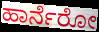
ಹಾರ್ನೆರೋ